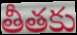
తీతకు